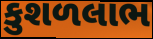
કુશળલાભ